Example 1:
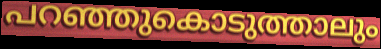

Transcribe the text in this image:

പറഞ്ഞുകൊടുത്താലും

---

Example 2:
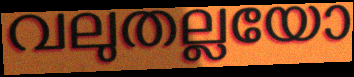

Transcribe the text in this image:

വലുതല്ലയോ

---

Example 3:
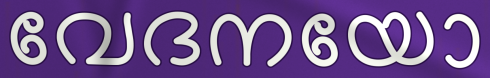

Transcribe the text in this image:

വേദനയോ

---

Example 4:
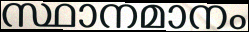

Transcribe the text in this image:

സ്ഥാനമാനം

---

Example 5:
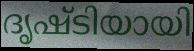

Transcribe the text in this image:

ദൃഷ്ടിയായി